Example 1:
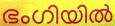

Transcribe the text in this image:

ഭംഗിയിൽ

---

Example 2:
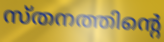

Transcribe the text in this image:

സ്തനത്തിന്റെ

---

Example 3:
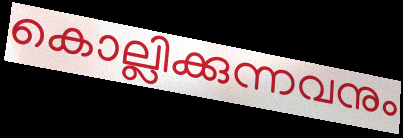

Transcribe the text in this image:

കൊല്ലിക്കുന്നവനും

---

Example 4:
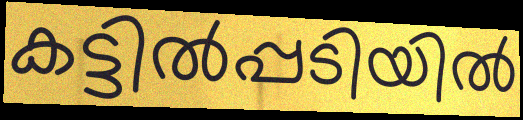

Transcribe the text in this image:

കട്ടിൽപ്പടിയിൽ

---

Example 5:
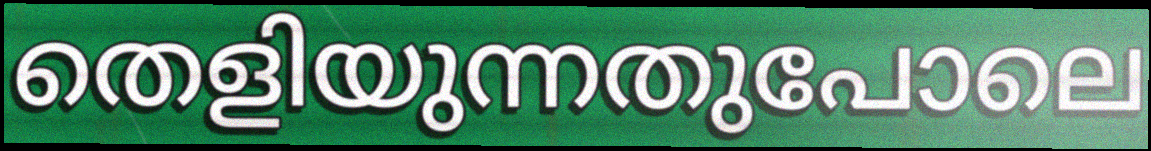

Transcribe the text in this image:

തെളിയുന്നതുപോലെ